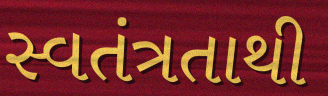
સ્વતંત્રતાથી